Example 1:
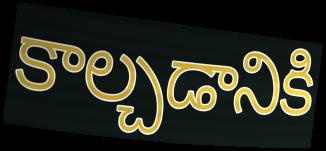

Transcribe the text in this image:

కాల్చడానికి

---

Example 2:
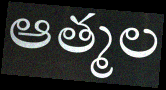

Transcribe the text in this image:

ఆత్మల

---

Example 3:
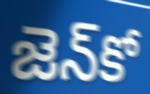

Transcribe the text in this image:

జెన్‌కో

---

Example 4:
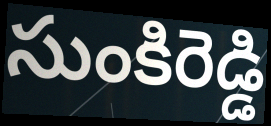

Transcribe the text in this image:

సుంకిరెడ్డి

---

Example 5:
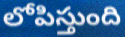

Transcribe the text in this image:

లోపిస్తుంది